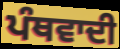
ਪੰਥਵਾਦੀ